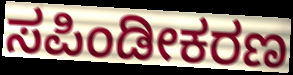
ಸಪಿಂಡೀಕರಣ